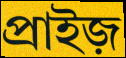
প্রাইজ়